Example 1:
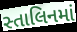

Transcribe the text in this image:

સ્તાલિનમાં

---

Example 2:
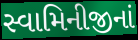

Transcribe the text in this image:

સ્વામિનીજીનાં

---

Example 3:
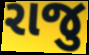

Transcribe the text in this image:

રાજુ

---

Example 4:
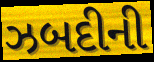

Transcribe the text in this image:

ઝબદીની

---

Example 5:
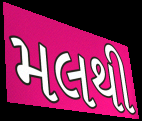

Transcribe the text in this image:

મલથી